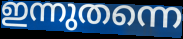
ഇന്നുതന്നെ